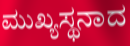
ಮುಖ್ಯಸ್ಥನಾದ